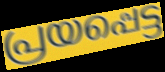
പ്രയപ്പെട്ട